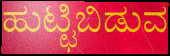
ಹುಟ್ಟಿಬಿಡುವ